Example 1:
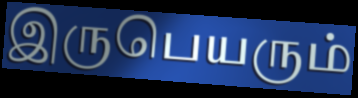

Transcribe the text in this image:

இருபெயரும்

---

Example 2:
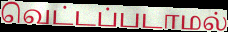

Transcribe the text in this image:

வெட்டப்படாமல்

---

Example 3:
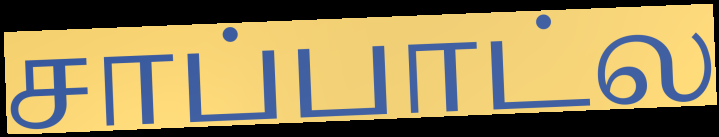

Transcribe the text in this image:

சாப்பாட்ல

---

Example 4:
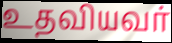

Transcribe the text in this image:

உதவியவர்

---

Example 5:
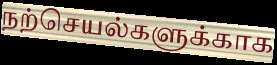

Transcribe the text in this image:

நற்செயல்களுக்காக